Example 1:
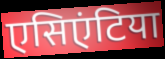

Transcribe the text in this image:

एसिएंटिया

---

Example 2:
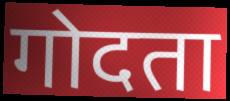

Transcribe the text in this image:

गोदता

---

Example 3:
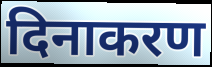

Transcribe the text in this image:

दिनाकरण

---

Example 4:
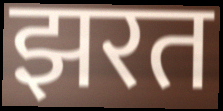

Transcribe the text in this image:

झरत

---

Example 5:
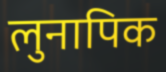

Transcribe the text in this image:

लुनापिक